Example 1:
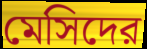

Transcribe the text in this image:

মেসিদের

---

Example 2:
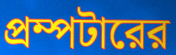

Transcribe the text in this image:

প্রম্পটারের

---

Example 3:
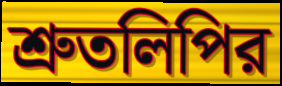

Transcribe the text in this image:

শ্রুতলিপির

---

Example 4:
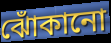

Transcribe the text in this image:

ঝোঁকানো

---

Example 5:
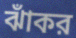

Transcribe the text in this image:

ঝাঁকর